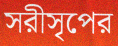
সরীসৃপের